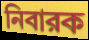
নিবারক